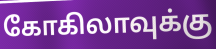
கோகிலாவுக்கு